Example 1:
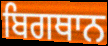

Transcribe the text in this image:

ਬਿਗਥਾਨ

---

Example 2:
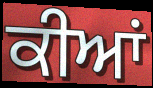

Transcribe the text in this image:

ਕੀਆਂ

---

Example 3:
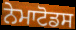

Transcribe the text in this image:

ਨੇਮਾਟੋਡਸ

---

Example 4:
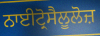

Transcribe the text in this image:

ਨਾਈਟ੍ਰੋਸੈਲੂਲੋਜ਼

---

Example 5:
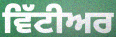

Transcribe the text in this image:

ਵਿੱਟੀਅਰ